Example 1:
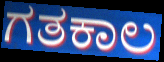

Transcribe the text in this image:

ಗತಕಾಲ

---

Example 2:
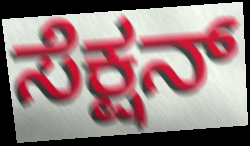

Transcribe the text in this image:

ಸೆಕ್ಷನ್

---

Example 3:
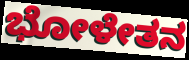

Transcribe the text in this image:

ಭೋಳೇತನ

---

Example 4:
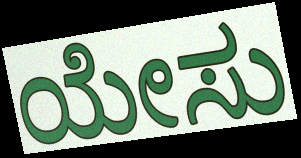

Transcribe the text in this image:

ಯೇಸು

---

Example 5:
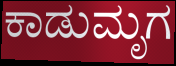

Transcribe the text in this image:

ಕಾಡುಮೃಗ